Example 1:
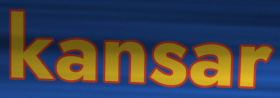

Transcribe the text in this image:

kansar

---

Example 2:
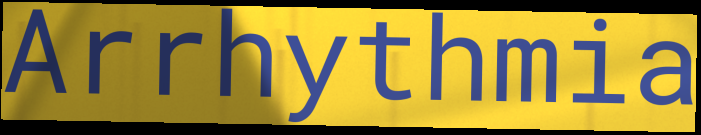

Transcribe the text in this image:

Arrhythmia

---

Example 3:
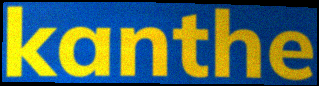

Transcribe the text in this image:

kanthe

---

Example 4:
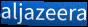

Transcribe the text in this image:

aljazeera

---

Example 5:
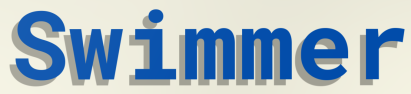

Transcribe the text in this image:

Swimmer